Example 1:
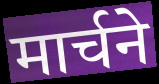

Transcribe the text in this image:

मार्चने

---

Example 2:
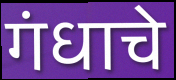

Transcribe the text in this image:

गंधाचे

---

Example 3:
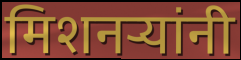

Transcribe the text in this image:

मिशनर्‍यांनी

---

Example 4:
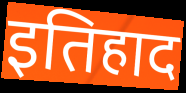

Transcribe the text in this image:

इतिहाद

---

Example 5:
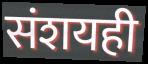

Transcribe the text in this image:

संशयही